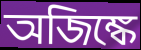
অজিঙ্কে